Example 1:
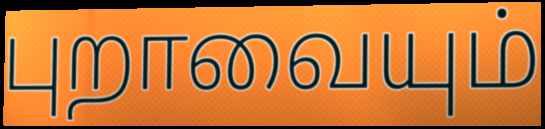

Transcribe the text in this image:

புறாவையும்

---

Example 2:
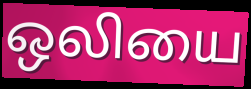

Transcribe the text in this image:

ஒலியை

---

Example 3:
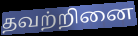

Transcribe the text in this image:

தவற்றினை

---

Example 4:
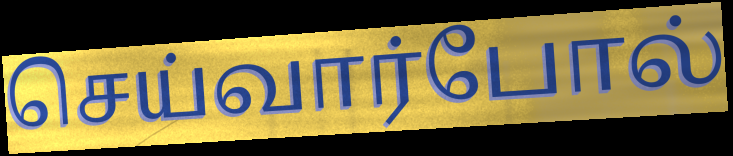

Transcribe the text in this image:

செய்வார்போல்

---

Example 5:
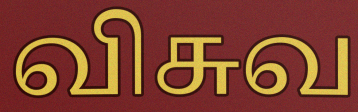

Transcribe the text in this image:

விசுவ